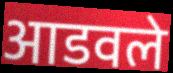
आडवले